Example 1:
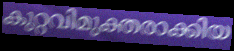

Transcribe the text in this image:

കുറ്റവിമുക്തരാക്കിയ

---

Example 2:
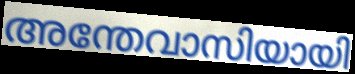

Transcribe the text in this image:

അന്തേവാസിയായി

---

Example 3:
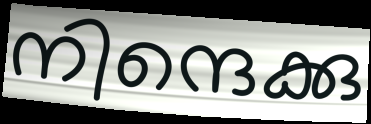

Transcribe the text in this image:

നിന്ദെക്കു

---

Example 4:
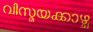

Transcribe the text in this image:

വിസ്മയക്കാഴ്ച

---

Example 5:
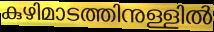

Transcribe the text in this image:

കുഴിമാടത്തിനുള്ളിൽ